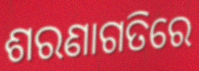
ଶରଣାଗତିରେ